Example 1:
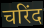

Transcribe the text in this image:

चरिंद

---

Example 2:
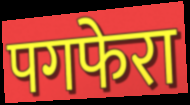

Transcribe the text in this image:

पगफेरा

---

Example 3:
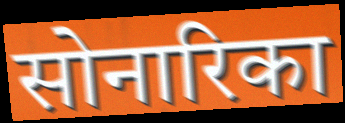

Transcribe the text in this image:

सोनारिका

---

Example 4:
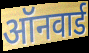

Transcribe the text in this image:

ऑनवार्ड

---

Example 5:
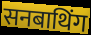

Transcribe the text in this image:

सनबाथिंग